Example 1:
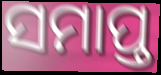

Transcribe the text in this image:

ସମାପ୍ତ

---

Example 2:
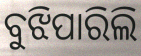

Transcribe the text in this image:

ବୁଝିପାରିଲି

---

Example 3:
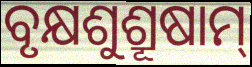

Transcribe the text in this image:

ବୃକ୍ଷଶୁଶ୍ରୂଷାମ୍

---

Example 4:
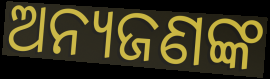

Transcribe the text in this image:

ଅନ୍ୟଜଣଙ୍କ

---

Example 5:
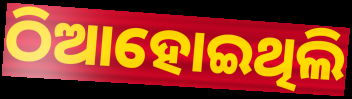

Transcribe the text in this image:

ଠିଆହୋଇଥିଲି